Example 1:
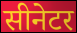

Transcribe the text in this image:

सीनेटर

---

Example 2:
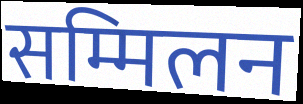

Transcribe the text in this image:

सम्मिलन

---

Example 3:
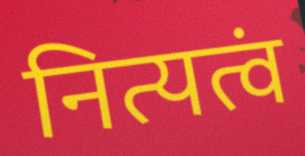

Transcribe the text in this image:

नित्यत्वं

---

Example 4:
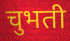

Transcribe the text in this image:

चुभती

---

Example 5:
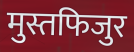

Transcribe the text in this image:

मुस्तफिजुर